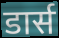
डार्स